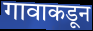
गावाकडून